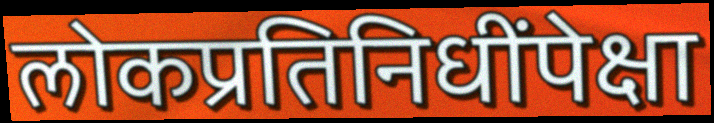
लोकप्रतिनिधींपेक्षा